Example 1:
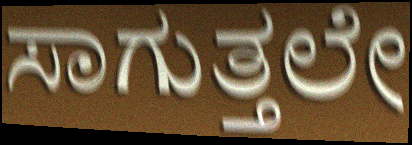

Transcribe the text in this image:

ಸಾಗುತ್ತಲೇ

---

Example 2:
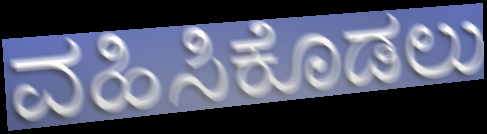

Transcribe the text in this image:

ವಹಿಸಿಕೊಡಲು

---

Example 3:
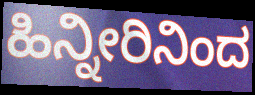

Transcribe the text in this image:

ಹಿನ್ನೀರಿನಿಂದ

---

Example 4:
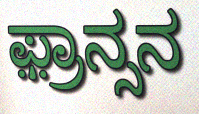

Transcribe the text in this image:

ಫ಼್ರಾನ್ಸನ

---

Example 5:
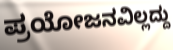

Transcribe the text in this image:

ಪ್ರಯೋಜನವಿಲ್ಲದ್ದು